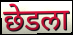
छेडला